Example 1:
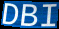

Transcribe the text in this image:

DBI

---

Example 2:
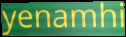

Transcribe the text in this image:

yenamhi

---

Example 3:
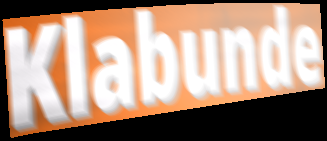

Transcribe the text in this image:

Klabunde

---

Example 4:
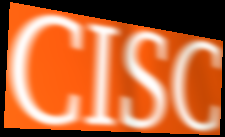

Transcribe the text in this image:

CISC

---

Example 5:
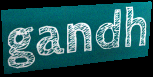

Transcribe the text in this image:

gandh